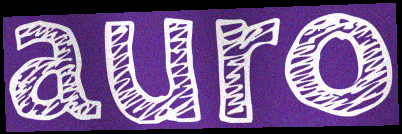
auro